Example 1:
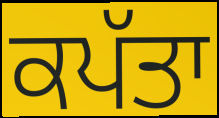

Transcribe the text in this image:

ਕਪੱਤਾ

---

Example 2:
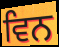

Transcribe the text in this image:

ਵਿਨ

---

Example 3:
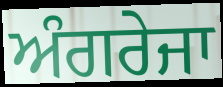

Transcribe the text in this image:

ਅੰਗਰੇਜਾ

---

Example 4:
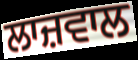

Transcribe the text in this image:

ਲਾਜ਼ਵਾਲ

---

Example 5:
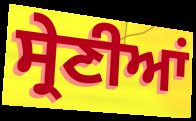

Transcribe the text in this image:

ਸ੍ਰੇਣੀਆਂ